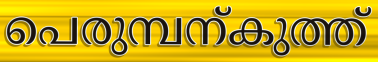
പെരുമ്പന്കുത്ത്